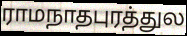
ராமநாதபுரத்துல